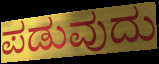
ಪಡುವುದು